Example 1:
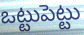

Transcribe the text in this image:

ఒట్టుపెట్టు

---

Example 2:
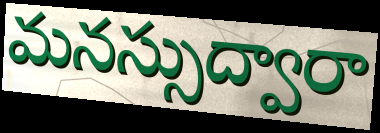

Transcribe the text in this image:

మనస్సుద్వారా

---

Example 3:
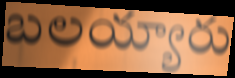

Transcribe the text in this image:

బలయ్యారు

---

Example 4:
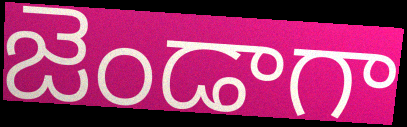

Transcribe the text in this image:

జెండాగా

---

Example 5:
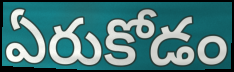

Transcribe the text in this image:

ఏరుకోడం